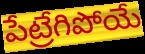
పేట్రేగిపోయే